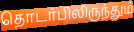
தொடர்பிலிருந்தும்